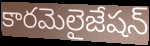
కారమెలైజేషన్